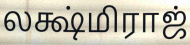
லக்ஷ்மிராஜ்